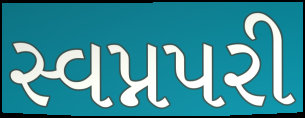
સ્વપ્નપરી